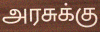
அரசுக்கு